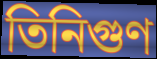
তিনিগুণ